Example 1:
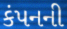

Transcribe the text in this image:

કંપનની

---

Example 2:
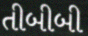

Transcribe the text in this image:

તીબીબી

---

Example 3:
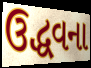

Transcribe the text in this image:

ઉદ્ધવના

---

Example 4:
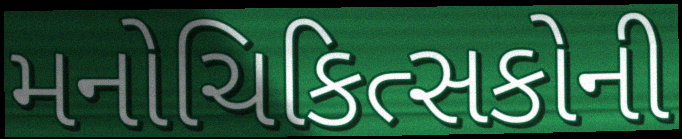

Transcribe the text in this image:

મનોચિકિત્સકોની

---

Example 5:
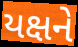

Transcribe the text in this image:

યક્ષને